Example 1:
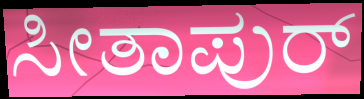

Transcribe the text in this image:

ಸೀತಾಪುರ್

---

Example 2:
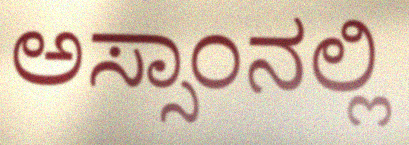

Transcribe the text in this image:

ಅಸ್ಸಾಂನಲ್ಲಿ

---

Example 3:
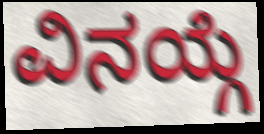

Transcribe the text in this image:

ವಿನಯ್ಗೆ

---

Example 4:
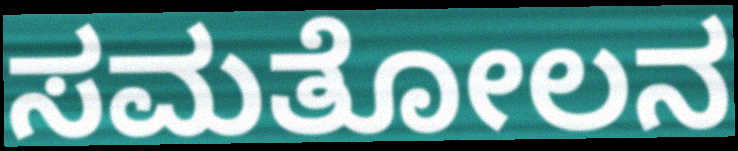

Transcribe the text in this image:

ಸಮತೋಲನ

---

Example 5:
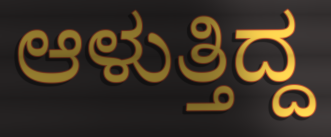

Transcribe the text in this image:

ಆಳುತ್ತಿದ್ದ